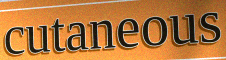
cutaneous